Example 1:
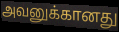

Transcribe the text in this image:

அவனுக்கானது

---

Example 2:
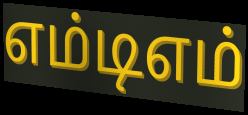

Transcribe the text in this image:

எம்டிஎம்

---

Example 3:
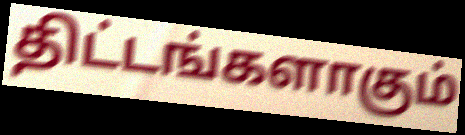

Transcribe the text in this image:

திட்டங்களாகும்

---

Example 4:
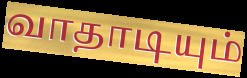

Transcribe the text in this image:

வாதாடியும்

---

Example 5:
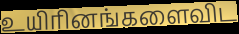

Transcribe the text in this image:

உயிரினங்களைவிட